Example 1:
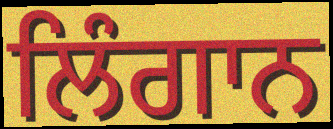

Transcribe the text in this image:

ਲਿੰਗਾਨ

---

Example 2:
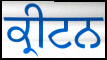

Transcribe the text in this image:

ਕ੍ਰੀਟਨ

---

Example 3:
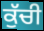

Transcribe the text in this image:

ਕੁੱਚੀ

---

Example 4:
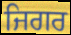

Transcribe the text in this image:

ਜਿਗਰ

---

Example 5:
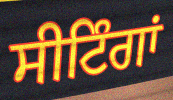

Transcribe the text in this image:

ਸੀਟਿੰਗਾਂ